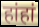
हांहां